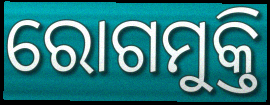
ରୋଗମୁକ୍ତି